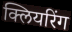
क्लियरिंग